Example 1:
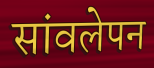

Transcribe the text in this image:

सांवलेपन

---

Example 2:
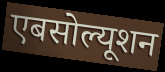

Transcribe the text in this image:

एबसोल्यूशन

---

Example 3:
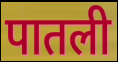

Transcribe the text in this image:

पातली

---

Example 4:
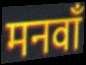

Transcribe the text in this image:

मनवाँ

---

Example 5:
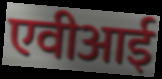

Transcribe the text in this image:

एवीआई